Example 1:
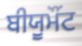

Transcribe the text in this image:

ਬੀਯੂਮੌਂਟ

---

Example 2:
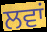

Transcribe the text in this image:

ਲਵਾਂ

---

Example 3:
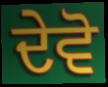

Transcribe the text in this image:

ਦੇਵੋ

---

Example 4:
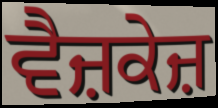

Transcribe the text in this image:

ਵੈਜ਼ਕੇਜ਼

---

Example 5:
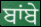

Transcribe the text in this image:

ਬਾਂਬੇ